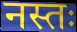
नस्तः